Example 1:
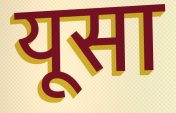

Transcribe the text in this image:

यूसा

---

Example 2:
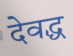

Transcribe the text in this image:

देवद्ध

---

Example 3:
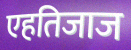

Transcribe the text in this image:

एहतिजाज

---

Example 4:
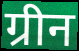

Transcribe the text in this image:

ग्रीन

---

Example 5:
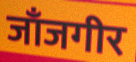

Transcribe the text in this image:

जाँजगीर